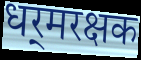
धर्मरक्षक